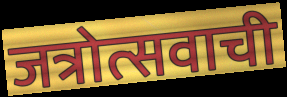
जत्रोत्सवाची